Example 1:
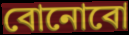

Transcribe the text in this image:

বোনোবো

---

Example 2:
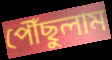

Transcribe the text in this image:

পৌঁছুলাম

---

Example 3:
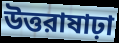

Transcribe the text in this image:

উত্তরাষাঢ়া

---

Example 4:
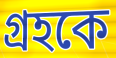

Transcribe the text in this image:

গ্রহকে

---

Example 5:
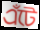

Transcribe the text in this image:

এঁটে